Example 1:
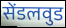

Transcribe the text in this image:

सेंडलवुड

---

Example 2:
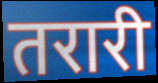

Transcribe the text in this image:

तरारी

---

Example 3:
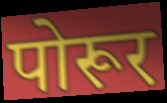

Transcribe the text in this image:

पोरूर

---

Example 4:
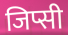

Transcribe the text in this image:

जिप्सी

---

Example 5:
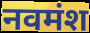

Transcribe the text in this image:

नवमंश